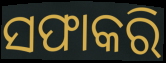
ସଫାକରି